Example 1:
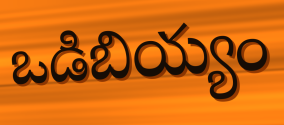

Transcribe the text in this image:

ఒడిబియ్యం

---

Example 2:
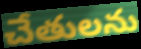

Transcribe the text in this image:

చేతులను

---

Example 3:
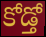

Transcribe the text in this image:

కోడ్తో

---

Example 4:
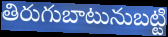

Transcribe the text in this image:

తిరుగుబాటునుబట్టి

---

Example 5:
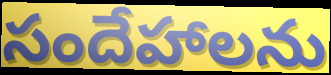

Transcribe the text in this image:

సందేహాలను